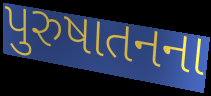
પુરુષાતનના